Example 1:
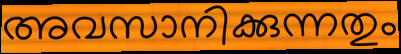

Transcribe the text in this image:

അവസാനിക്കുന്നതും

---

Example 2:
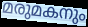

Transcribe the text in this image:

മരുമകനും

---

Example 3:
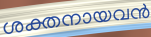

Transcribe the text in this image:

ശക്തനായവൻ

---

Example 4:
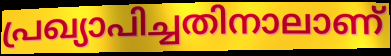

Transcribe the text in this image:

പ്രഖ്യാപിച്ചതിനാലാണ്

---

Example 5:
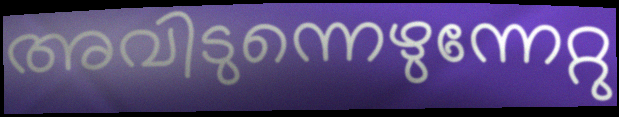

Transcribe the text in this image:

അവിടുന്നെഴുന്നേറ്റു